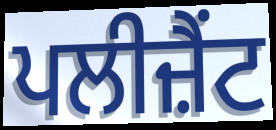
ਪਲੀਜ਼ੈਂਟ